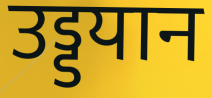
उड्डयान